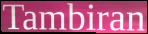
Tambiran